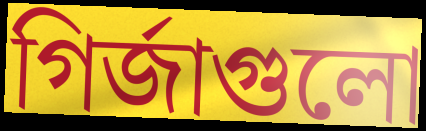
গির্জাগুলো